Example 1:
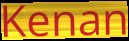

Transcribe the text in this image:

Kenan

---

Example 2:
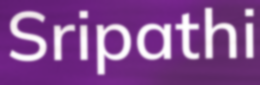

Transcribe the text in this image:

Sripathi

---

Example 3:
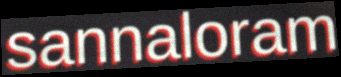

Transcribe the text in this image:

sannaloram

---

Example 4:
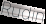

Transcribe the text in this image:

Rudin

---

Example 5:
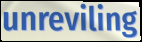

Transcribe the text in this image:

unreviling